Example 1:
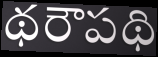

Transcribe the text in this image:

థరౌపథి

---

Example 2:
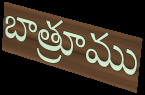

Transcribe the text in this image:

బాత్రూము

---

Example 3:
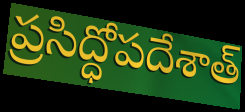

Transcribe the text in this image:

ప్రసిద్ధోపదేశాత్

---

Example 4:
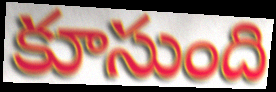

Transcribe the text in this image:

కూసుంది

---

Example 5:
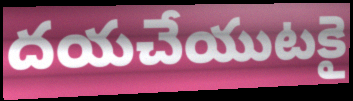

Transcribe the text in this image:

దయచేయుటకై